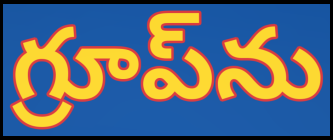
గ్రూప్‌ను